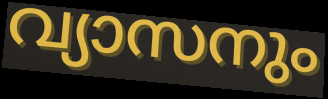
വ്യാസനും